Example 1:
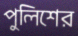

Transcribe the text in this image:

পুলিশের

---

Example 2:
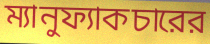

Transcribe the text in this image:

ম্যানুফ্যাকচারের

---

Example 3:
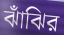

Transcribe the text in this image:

ঝাঁঝির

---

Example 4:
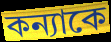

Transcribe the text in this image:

কন্যাকে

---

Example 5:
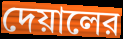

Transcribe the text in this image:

দেয়ালের